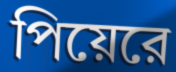
পিয়েরে